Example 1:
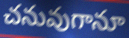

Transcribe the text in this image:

చనువుగానూ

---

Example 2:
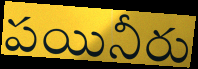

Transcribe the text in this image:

పయినీరు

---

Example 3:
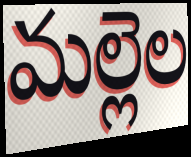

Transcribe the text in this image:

మల్లెల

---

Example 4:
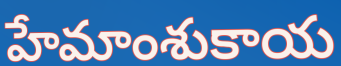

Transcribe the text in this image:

హేమాంశుకాయ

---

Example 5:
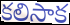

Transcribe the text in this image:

కలిసాక